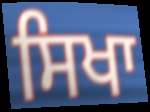
ਸਿਖਾ